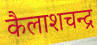
कैलाशचन्द्र